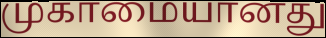
முகாமையானது